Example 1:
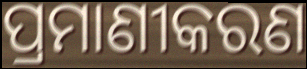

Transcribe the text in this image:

ପ୍ରମାଣୀକରଣ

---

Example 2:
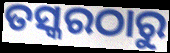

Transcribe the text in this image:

ତସ୍କରଠାରୁ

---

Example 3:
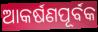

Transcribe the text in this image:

ଆକର୍ଷଣପୂର୍ବକ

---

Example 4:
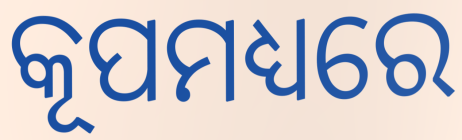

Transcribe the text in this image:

କୂପମଧ୍ୟରେ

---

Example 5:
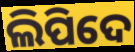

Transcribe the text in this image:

ଲିପିଦେ